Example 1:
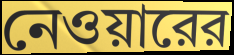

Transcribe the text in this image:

নেওয়ারের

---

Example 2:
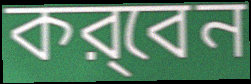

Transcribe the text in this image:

কর্‌বেন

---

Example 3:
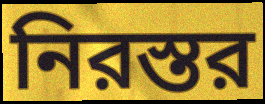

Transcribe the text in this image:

নিরস্তর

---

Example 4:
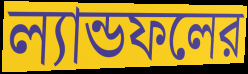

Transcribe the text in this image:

ল্যান্ডফলের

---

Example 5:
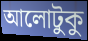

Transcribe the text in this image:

আলোটুকু